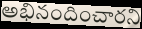
అభినందించారని